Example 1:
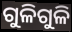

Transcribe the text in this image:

ଗୁଳିଗୁଳି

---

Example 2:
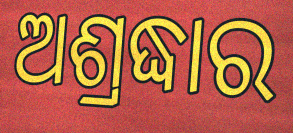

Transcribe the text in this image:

ଅଶ୍ରଦ୍ଧାର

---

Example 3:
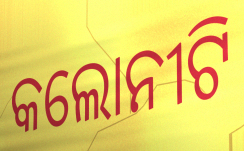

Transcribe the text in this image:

କଲୋନୀଟି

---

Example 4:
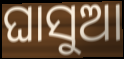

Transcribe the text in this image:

ଘାସୁଆ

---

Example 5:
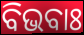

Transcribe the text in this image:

ବିଭବାଃ